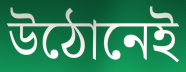
উঠোনেই